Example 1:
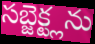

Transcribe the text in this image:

సబ్జెక్ట్లను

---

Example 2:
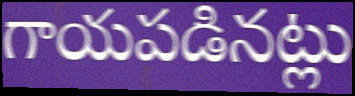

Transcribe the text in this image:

గాయపడినట్లు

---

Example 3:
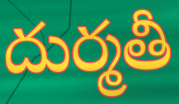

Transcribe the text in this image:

దుర్మతీ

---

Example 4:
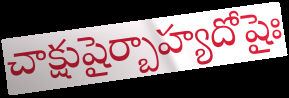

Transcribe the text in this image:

చాక్షుషైర్బాహ్యదోషైః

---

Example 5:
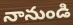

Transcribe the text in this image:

నానుండి